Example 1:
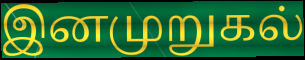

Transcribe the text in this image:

இனமுறுகல்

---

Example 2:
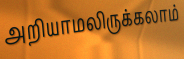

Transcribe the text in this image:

அறியாமலிருக்கலாம்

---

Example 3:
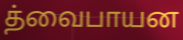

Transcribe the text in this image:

த்வைபாயன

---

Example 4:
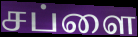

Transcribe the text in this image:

சப்ளை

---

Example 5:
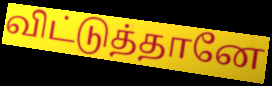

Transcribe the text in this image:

விட்டுத்தானே